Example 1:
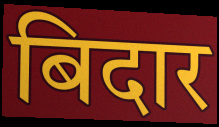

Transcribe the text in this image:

बिदार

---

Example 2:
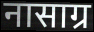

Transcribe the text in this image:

नासाग्र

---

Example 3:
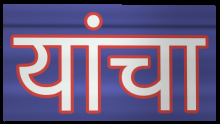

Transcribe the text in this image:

यांचा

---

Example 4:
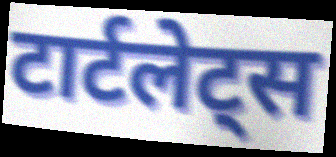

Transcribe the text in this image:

टार्टलेट्स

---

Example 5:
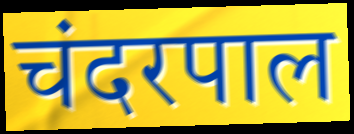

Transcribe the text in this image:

चंदरपाल